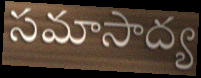
సమాసాద్య